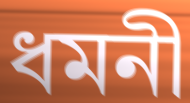
ধমনী